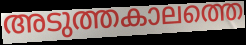
അടുത്തകാലത്തെ